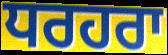
ਧਰਹਰਾ